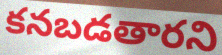
కనబడతారని